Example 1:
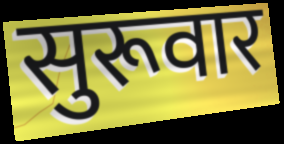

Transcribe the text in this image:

सुरूवार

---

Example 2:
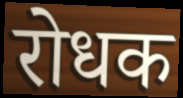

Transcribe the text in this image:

रोधक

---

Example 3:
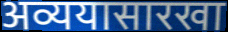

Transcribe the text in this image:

अव्ययासारखा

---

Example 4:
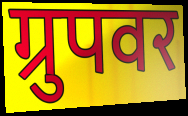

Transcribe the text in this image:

ग्रुपवर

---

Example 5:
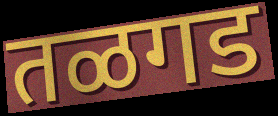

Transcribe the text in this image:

तळगड